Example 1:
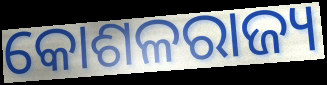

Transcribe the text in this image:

କୋଶଳରାଜ୍ୟ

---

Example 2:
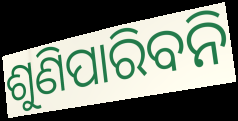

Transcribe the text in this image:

ଶୁଣିପାରିବନି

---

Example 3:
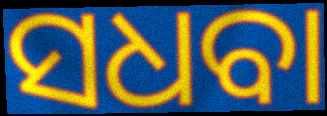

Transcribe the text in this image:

ସଧବା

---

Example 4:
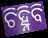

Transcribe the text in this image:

ଚିହ୍ନିବି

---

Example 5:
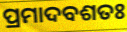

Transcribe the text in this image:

ପ୍ରମାଦବଶତଃ